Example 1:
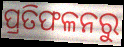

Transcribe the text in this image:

ପ୍ରତିଫଳନରୁ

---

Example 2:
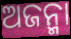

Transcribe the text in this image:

ଅଜନ୍ମା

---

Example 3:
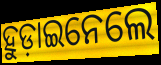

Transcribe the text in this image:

ହୁଡ଼ାଇନେଲେ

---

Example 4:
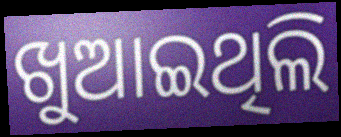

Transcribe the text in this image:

ଖୁଆଇଥିଲି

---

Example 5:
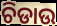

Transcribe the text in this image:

ଚିଡାଉ